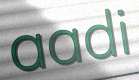
aadi